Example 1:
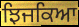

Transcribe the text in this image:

ਝਿਜਕਿਆ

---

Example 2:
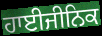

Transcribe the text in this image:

ਹਾਈਜੀਨਿਕ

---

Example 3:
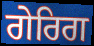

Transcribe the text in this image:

ਗੇਰਿਗ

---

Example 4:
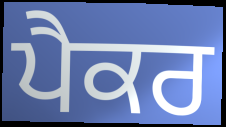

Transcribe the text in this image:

ਪੈਕਰ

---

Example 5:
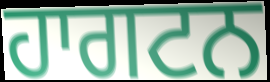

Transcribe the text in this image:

ਹਾਗਟਨ